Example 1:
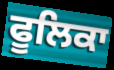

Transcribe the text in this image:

ਫੂਲਿਕਾ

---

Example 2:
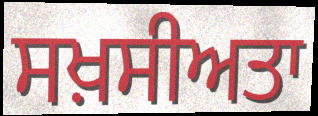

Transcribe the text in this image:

ਸਖ਼ਸੀਅਤਾ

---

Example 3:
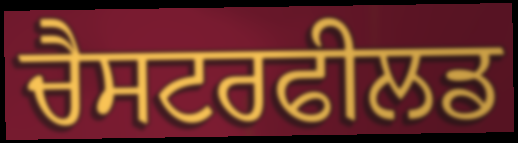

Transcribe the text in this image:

ਚੈਸਟਰਫੀਲਡ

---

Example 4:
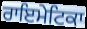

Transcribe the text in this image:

ਰਾਇਮੇਟਿਕਾ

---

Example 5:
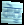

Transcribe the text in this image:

ਗੋਲੂ